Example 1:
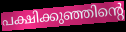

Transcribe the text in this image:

പക്ഷിക്കുഞ്ഞിന്റെ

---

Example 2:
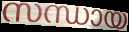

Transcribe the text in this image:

സന്ധായ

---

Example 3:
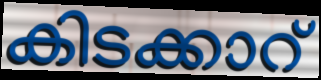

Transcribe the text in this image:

കിടക്കാറ്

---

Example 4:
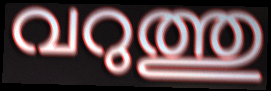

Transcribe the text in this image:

വറുത്തു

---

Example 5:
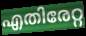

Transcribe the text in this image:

എതിരേറ്റ